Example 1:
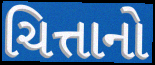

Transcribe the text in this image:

ચિત્તાનો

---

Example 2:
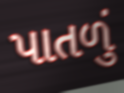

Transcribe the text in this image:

પાતળું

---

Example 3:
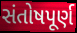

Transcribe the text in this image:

સંતોષપૂર્ણ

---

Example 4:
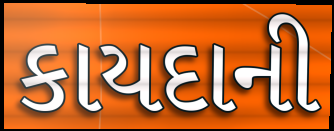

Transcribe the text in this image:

કાયદાની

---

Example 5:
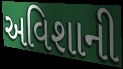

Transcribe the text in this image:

અવિશાની